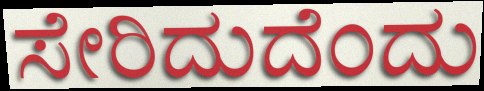
ಸೇರಿದುದೆಂದು